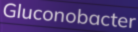
Gluconobacter